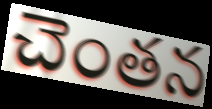
చెంతన